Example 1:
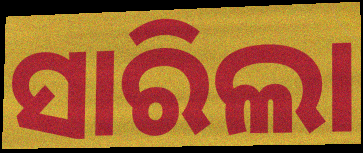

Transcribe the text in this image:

ସାରିଲା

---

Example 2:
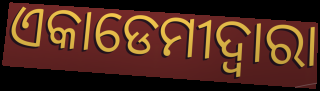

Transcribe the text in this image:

ଏକାଡେମୀଦ୍ୱାରା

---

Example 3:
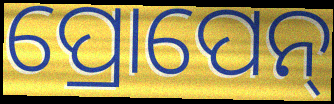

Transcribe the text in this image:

ପ୍ରୋପେନ୍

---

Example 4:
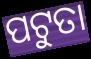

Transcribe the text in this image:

ପଟୁତା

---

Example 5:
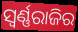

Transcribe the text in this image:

ସ୍ଵର୍ଣ୍ଣରାଜିର